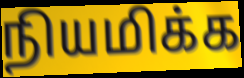
நியமிக்க